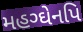
મહગ્ઘેનપિ